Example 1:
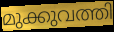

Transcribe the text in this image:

മുക്കുവത്തി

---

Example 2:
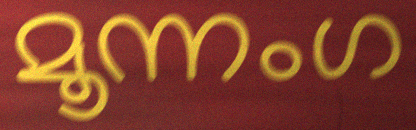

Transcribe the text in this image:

മൂന്നംഗ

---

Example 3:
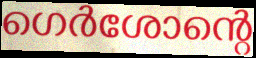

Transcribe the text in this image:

ഗെർശോന്റെ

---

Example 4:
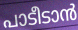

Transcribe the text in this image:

പാടീടാൻ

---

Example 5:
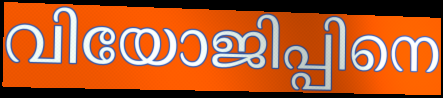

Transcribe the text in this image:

വിയോജിപ്പിനെ